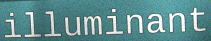
illuminant